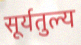
सूर्यतुल्य